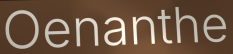
Oenanthe